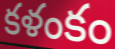
కళంకం